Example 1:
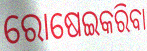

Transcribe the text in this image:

ରୋଷେଇକରିବା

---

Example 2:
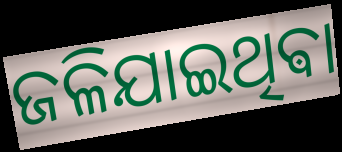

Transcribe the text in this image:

ଜଳିଯାଇଥିଵା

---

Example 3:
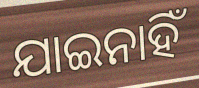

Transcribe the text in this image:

ଯାଇନାହିଁ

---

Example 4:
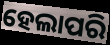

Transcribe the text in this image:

ହେଲାପରି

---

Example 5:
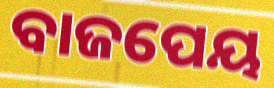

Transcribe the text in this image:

ବାଜପେୟ